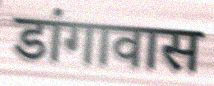
डांगावास